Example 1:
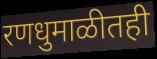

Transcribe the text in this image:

रणधुमाळीतही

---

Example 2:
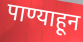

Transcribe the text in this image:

पाण्याहून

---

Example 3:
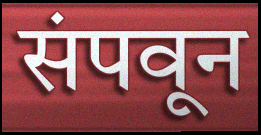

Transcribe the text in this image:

संपवून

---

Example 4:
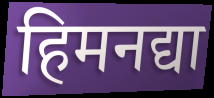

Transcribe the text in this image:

हिमनद्या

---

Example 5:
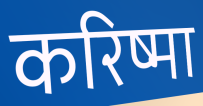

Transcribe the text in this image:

करिष्मा